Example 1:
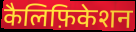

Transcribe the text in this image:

कैलिफ़िकेशन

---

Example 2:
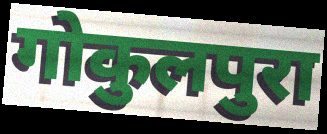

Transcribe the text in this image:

गोकुलपुरा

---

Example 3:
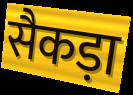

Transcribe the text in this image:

सैकड़ा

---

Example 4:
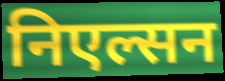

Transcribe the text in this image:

निएल्सन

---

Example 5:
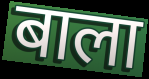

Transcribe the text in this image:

बाला